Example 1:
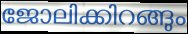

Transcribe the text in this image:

ജോലിക്കിറങ്ങും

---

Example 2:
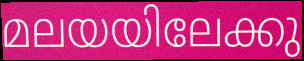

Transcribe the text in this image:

മലയയിലേക്കു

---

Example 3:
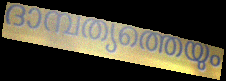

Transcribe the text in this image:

ദാമ്പത്യത്തെയും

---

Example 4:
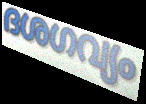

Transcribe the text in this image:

ദശഗവ്യം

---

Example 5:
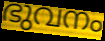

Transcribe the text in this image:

ഭുവനം